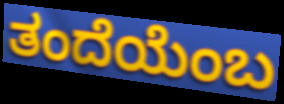
ತಂದೆಯೆಂಬ